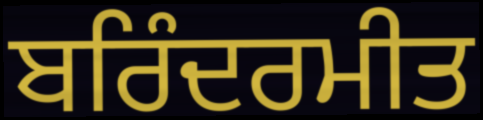
ਬਰਿੰਦਰਮੀਤ